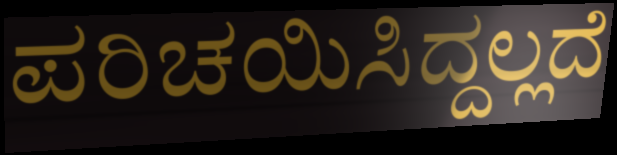
ಪರಿಚಯಿಸಿದ್ದಲ್ಲದೆ